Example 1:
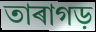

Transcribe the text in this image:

তাৰাগড়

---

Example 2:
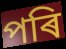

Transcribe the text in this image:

পৰি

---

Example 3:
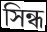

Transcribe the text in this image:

সিন্ধ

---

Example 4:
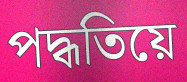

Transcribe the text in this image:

পদ্ধতিয়ে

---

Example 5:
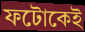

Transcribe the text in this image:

ফটোকেই